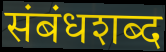
संबंधशब्द